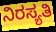
ನಿರಸ್ಯತಿ